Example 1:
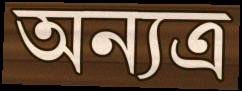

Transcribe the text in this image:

অন্যত্ৰ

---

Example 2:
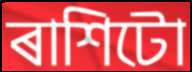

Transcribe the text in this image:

ৰাশিটো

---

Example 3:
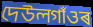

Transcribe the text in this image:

দেউলগাঁওৰ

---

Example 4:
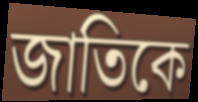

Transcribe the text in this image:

জাতিকে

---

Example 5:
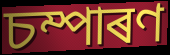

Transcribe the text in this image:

চম্পাৰণ